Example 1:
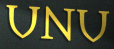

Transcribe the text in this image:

UNU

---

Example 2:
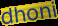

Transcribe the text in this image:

dhoni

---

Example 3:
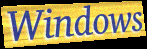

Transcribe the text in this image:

Windows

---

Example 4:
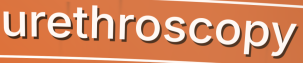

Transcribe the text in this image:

urethroscopy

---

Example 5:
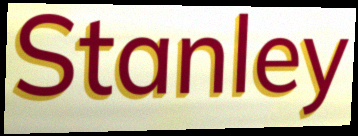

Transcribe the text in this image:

Stanley